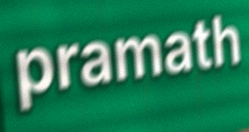
pramath